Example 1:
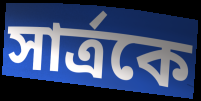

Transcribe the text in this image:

সার্ত্রকে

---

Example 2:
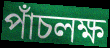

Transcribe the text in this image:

পাঁচলক্ষ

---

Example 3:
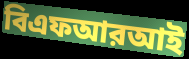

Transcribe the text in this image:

বিএফআরআই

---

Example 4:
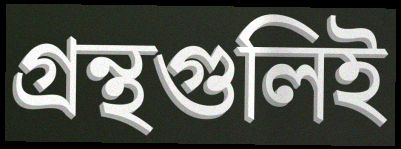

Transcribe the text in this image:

গ্রন্থগুলিই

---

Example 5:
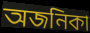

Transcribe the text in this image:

অজনিকা